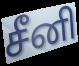
சீனி